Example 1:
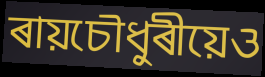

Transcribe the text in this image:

ৰায়চৌধুৰীয়েও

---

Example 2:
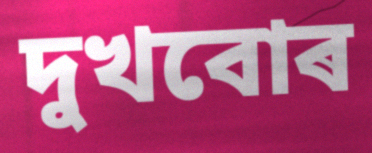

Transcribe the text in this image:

দুখবোৰ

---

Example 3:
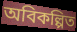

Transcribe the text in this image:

অবিকল্পিত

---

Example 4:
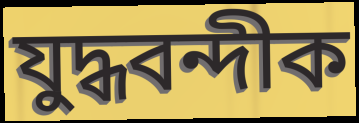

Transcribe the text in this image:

যুদ্ধবন্দীক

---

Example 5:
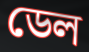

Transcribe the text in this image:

ডেল